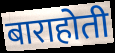
बाराहोती